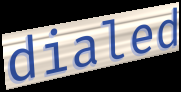
dialed